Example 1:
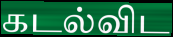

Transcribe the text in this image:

கடல்விட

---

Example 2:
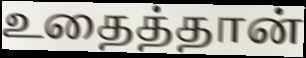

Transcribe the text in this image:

உதைத்தான்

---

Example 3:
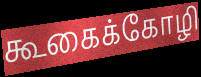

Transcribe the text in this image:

கூகைக்கோழி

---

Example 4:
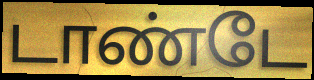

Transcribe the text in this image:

டாண்டே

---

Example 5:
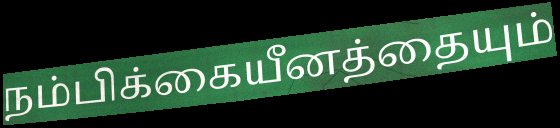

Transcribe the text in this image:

நம்பிக்கையீனத்தையும்